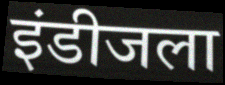
इंडीजला